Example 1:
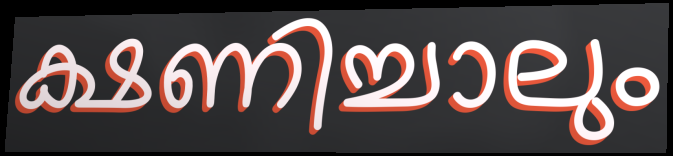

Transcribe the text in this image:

ക്ഷണിച്ചാലും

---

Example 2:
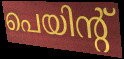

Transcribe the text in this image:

പെയിന്റ്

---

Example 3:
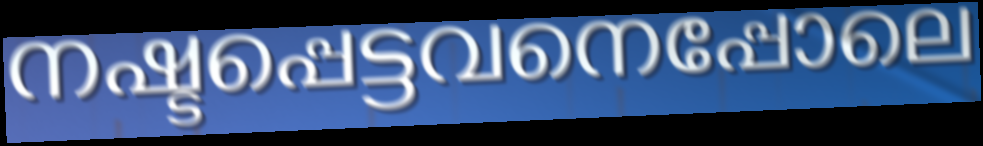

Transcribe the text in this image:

നഷ്ടപ്പെട്ടവനെപ്പോലെ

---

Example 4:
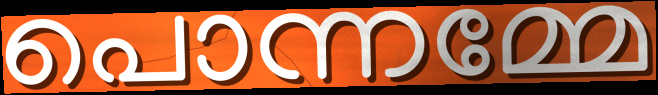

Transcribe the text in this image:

പൊന്നമ്മേ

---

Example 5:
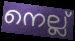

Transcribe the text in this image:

നെല്ല്